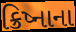
ક્રિષ્નાના